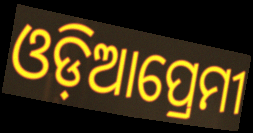
ଓଡ଼ିଆପ୍ରେମୀ